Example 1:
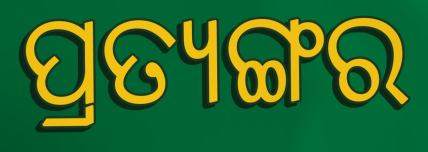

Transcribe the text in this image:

ପ୍ରତ୍ୟଙ୍ଗର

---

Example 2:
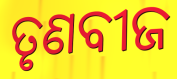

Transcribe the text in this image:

ତୃଣବୀଜ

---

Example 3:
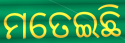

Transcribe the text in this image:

ମତେଇଛି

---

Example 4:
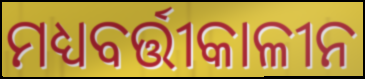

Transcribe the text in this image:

ମଧ୍ୟବର୍ତ୍ତୀକାଳୀନ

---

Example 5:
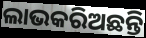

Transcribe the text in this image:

ଲାଭକରିଅଛନ୍ତି